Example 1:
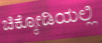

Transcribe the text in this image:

ಚಿಕ್ಕೋಡಿಯಲ್ಲಿ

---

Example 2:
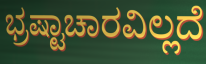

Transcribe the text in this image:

ಭ್ರಷ್ಟಾಚಾರವಿಲ್ಲದೆ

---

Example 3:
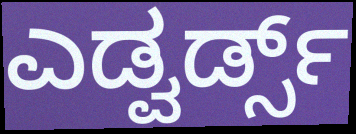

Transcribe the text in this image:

ಎಡ್ವರ್ಡ್ಸ್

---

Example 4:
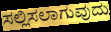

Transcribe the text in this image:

ಸಲ್ಲಿಸಲಾಗುವುದು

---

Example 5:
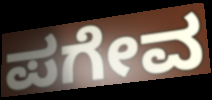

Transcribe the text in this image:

ಪಗೇವ